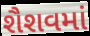
શૈશવમાં